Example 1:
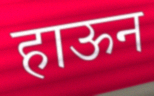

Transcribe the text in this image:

हाऊन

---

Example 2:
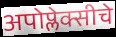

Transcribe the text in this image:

अपोप्लेक्सीचे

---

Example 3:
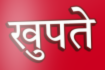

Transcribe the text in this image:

खुपते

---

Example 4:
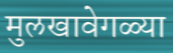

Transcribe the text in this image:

मुलखावेगळ्या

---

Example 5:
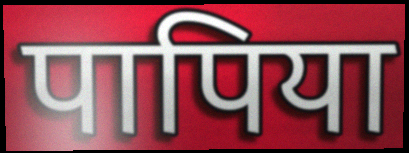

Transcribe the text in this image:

पापिया